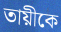
তায়ীকে